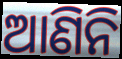
ଆଣିନି